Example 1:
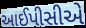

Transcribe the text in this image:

આઈપીસીએ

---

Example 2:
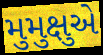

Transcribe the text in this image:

મુમુક્ષુએ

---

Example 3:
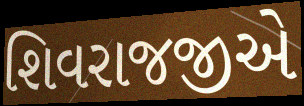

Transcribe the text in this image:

શિવરાજજીએ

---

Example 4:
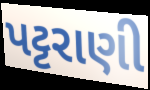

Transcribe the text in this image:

પટ્ટરાણી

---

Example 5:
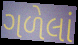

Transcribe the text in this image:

ગળેલાં